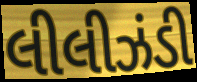
લીલીઝંડી